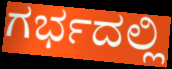
ಗರ್ಭದಲ್ಲಿ